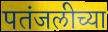
पतंजलीच्या